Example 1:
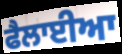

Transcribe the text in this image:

ਫੈਲਾਈਆ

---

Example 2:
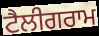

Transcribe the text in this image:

ਟੈਲੀਗਰਾਮ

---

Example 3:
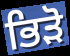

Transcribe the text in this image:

ਭਿੜੋ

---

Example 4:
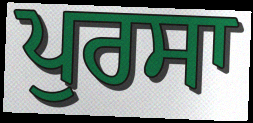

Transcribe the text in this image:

ਪੁਰਸਾ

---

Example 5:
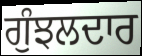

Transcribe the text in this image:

ਗੁੰਝਲਦਾਰ